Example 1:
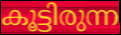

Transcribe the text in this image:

കൂട്ടിരുന്ന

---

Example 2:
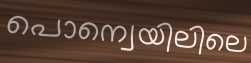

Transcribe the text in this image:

പൊന്വെയിലിലെ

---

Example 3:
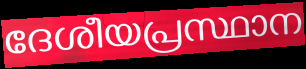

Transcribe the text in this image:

ദേശീയപ്രസ്ഥാന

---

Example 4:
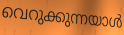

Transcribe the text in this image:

വെറുക്കുന്നയാൾ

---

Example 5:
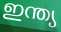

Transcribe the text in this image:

ഇന്ത്യ